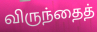
விருந்தைத்